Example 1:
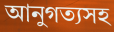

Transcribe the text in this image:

আনুগত্যসহ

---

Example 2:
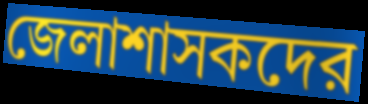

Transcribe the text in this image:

জেলাশাসকদের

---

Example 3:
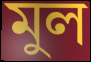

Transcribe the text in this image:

মুল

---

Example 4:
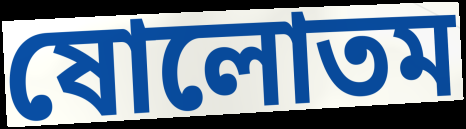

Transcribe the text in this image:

ষোলোতম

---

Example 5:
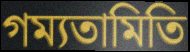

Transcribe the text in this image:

গম্যতামিতি